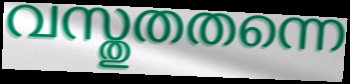
വസ്തുതതന്നെ